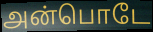
அன்பொடே